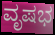
ವೃಷಭ